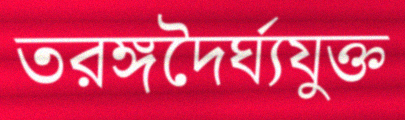
তরঙ্গদৈর্ঘ্যযুক্ত